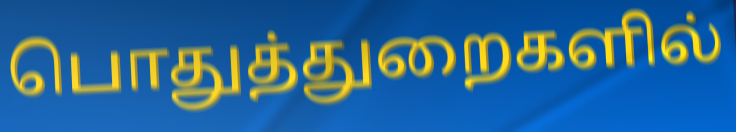
பொதுத்துறைகளில்